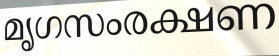
മൃഗസംരക്ഷണ